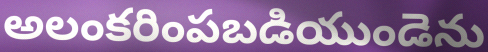
అలంకరింపబడియుండెను